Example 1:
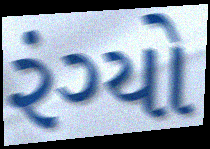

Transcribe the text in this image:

રંગ્યો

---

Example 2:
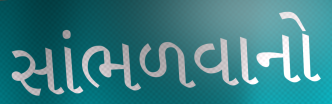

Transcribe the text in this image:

સાંભળવાનો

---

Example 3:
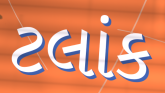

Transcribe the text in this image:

ટલાંક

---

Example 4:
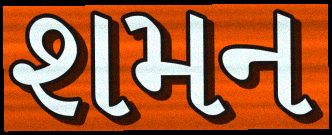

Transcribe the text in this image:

શમન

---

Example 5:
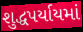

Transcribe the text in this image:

શુદ્ધપર્યાયમાં